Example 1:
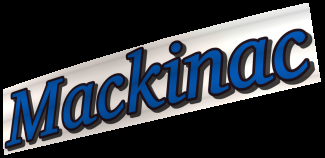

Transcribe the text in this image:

Mackinac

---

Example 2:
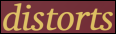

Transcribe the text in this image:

distorts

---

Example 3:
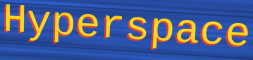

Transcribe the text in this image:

Hyperspace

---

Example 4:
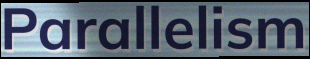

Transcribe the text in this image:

Parallelism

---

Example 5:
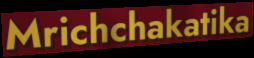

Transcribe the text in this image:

Mrichchakatika